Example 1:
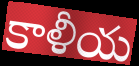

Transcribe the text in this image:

కాళీయ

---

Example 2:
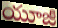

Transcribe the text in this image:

యూజీ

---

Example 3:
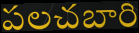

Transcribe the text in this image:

పలచబారి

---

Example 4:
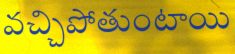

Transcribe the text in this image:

వచ్చిపోతుంటాయి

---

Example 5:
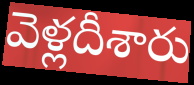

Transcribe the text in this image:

వెళ్లదీశారు